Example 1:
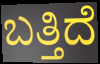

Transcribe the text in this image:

ಬತ್ತಿದೆ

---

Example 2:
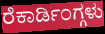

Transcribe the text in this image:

ರೆಕಾರ್ಡಿಂಗ್ಗಳು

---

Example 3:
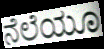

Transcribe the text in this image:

ನೆಲೆಯೂ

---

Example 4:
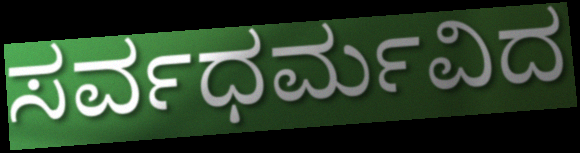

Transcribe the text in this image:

ಸರ್ವಧರ್ಮವಿದ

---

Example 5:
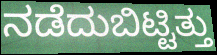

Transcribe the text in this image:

ನಡೆದುಬಿಟ್ಟಿತ್ತು